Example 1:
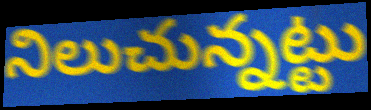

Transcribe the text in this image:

నిలుచున్నట్టు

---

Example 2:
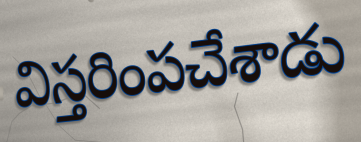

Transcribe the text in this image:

విస్తరింపచేశాడు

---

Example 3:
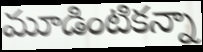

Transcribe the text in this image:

మూడింటికన్నా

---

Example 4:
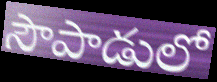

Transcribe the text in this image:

సౌపాడులో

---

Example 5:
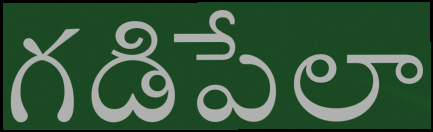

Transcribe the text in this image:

గడిపేలా